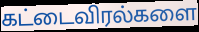
கட்டைவிரல்களை